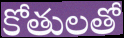
కోతులతో